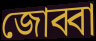
জোব্বা